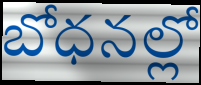
బోధనల్లో